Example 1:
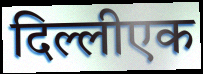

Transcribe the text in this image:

दिल्लीएक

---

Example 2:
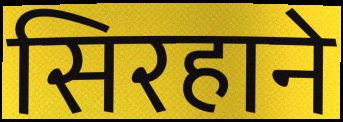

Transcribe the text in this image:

सिरहाने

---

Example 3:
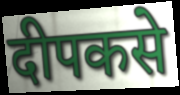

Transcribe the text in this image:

दीपकसे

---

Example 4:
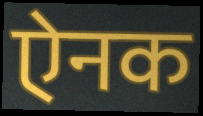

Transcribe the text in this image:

ऐनक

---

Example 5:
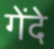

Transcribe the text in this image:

गेंदे